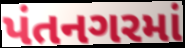
પંતનગરમાં